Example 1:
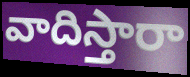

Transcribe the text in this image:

వాదిస్తారా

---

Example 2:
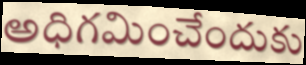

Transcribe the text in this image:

అధిగమించేందుకు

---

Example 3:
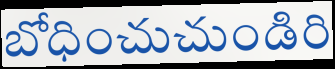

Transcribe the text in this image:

బోధించుచుండిరి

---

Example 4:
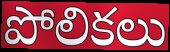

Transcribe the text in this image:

పోలికలు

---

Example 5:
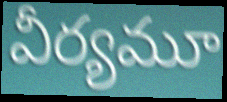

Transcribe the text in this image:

వీర్యమూ